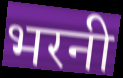
भरनी